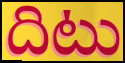
దిటు